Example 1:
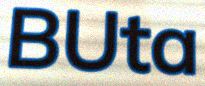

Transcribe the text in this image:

BUta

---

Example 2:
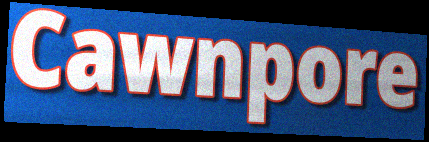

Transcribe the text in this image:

Cawnpore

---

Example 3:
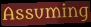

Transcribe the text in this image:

Assuming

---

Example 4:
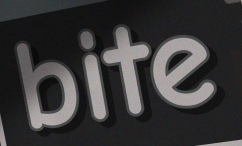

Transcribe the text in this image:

bite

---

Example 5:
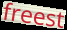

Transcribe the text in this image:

freest